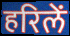
हरिलें